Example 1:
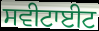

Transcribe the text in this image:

ਸਵੀਟਾਈਟ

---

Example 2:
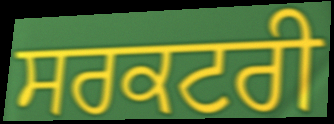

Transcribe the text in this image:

ਸਰਕਟਰੀ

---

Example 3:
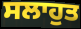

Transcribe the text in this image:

ਸਲਾਹੁਤ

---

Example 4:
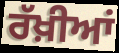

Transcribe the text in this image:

ਰੱਖ਼ੀਆਂ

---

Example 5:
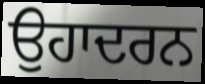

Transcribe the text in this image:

ਉਹਾਦਰਨ